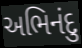
અભિનંદુ